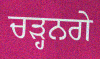
ਚੜ੍ਹਨਗੇ